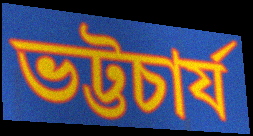
ভট্টচাৰ্য